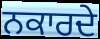
ਨਕਾਰਦੇ